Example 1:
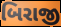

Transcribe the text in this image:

બિરાજી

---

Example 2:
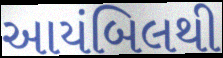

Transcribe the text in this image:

આયંબિલથી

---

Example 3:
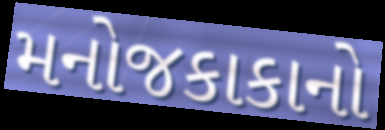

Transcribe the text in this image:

મનોજકાકાનો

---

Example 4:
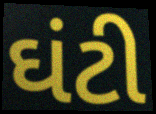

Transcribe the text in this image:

ઘંટી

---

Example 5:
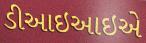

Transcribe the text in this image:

ડીઆઇઆઇએ